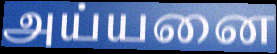
அய்யனை